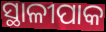
ସ୍ଥାଳୀପାକ